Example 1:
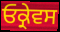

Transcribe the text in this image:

ਓਕ੍ਰੇਵਸ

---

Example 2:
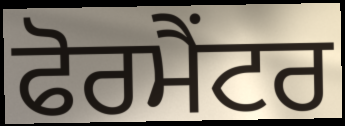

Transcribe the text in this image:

ਫੋਰਮੈਂਟਰ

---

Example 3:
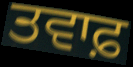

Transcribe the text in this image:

ਤਵਾਫ਼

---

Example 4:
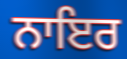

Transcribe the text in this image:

ਨਾਇਰ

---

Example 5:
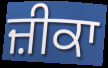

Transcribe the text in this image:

ਜ਼ੀਕਾ